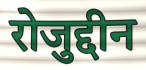
रोजुद्दीन